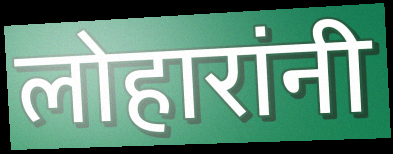
लोहारांनी